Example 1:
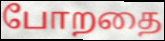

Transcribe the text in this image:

போறதை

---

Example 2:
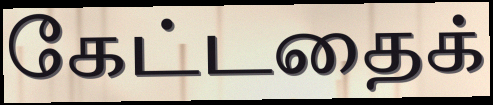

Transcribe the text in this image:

கேட்டதைக்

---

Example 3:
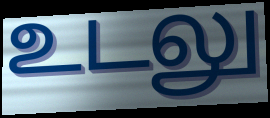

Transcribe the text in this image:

உடலு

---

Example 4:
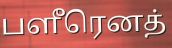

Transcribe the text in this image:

பளீரெனத்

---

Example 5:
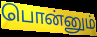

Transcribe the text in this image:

பொன்னும்